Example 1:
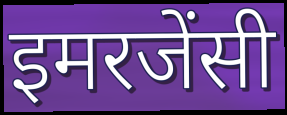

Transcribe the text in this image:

इमरजेंसी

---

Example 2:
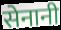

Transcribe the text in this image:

सेनानी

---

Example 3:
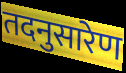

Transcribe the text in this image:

तदनुसारेण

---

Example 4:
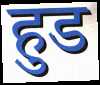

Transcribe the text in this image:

हुड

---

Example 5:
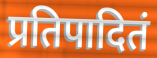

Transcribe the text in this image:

प्रतिपादितं